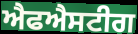
ਐਫਐਸਟੀਗ